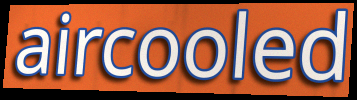
aircooled